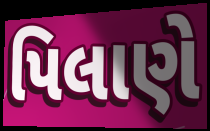
પિલાણે